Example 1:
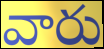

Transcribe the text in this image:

వారు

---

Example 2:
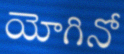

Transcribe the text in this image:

యోగినో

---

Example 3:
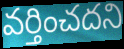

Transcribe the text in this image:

వర్తించదని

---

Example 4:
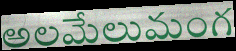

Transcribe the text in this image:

అలమేలుమంగ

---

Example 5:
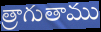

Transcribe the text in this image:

త్రాగుతాము